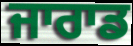
ਜਾਰਾਡ